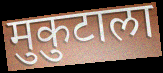
मुकुटाला